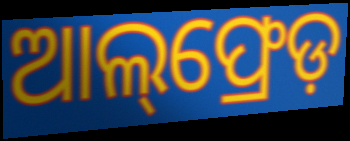
ଆଲ୍‌ଫ୍ରେଡ଼